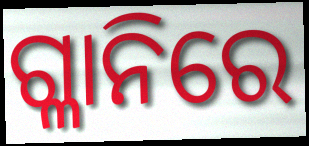
ଗ୍ଳାନିରେ